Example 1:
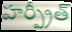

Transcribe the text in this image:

హర్ప్రీత్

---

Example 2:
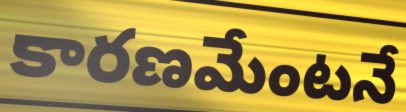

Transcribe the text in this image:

కారణమేంటనే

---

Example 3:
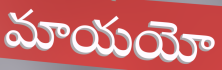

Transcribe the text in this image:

మాయయో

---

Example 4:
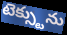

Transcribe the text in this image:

టెక్స్టును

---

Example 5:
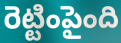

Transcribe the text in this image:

రెట్టింపైంది